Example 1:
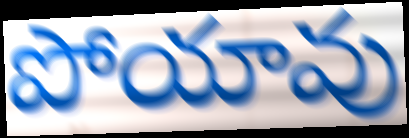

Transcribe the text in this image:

పోయావు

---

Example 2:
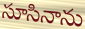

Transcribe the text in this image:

సూసినాను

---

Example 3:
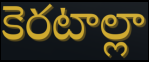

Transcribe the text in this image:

కెరటాల్లా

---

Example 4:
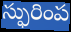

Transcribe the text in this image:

స్ఫురింప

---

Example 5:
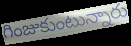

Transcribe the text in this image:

గింజుకుంటున్నారు